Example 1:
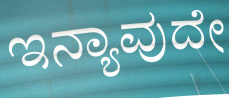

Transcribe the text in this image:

ಇನ್ಯಾವುದೇ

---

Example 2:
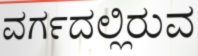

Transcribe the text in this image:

ವರ್ಗದಲ್ಲಿರುವ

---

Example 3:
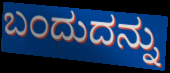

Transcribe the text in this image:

ಬಂದುದನ್ನು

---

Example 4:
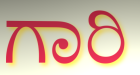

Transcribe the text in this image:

ಗಾರಿ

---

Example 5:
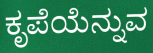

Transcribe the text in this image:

ಕೃಪೆಯೆನ್ನುವ